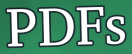
PDFs